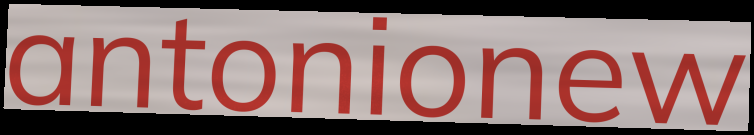
antonionew